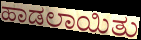
ಹಾಡಲಾಯಿತು